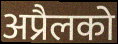
अप्रैलको